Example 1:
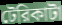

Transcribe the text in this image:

টেরিকাটা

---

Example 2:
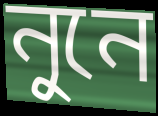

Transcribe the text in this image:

নুনে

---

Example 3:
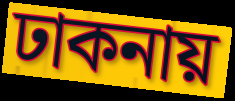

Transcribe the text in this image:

ঢাকনায়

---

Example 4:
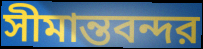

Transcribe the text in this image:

সীমান্তবন্দর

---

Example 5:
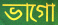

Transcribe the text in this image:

ভাগো